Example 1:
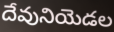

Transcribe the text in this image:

దేవునియెడల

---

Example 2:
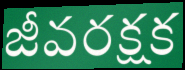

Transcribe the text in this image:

జీవరక్షక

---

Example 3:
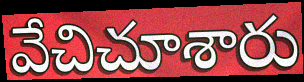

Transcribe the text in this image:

వేచిచూశారు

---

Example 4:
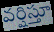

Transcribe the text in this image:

వర్షిస్తూ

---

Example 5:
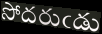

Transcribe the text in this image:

సోదరుఁడు